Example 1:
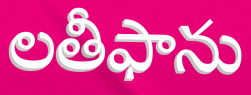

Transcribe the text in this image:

లతీఫాను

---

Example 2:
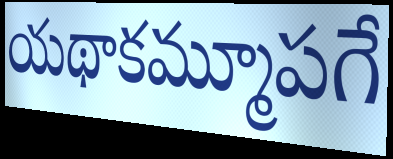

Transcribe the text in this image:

యథాకమ్మూపగే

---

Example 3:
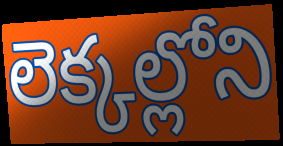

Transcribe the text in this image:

లెక్కల్లోని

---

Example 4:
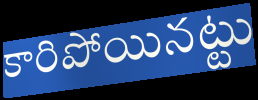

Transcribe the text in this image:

కారిపోయినట్టు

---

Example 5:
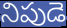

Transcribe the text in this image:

నిపుడె